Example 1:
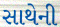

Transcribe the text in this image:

સાથેની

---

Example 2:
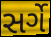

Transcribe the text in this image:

સર્ગે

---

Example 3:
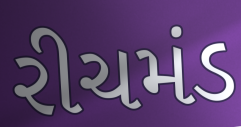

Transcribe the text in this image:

રીચમંડ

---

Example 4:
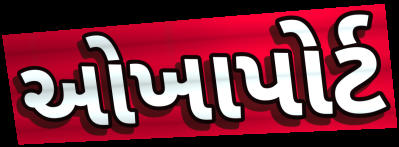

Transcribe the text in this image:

ઓખાપોર્ટ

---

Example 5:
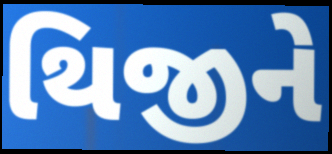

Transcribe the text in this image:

થિજીને